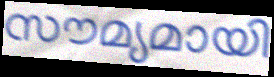
സൗമ്യമായി